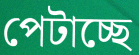
পেটাচ্ছে